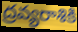
ద్రవ్యరాశికి